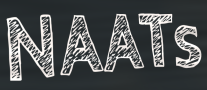
NAATs